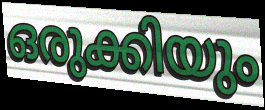
ഒരുക്കിയും